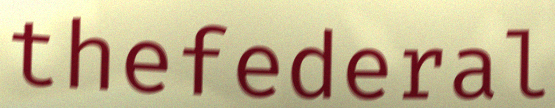
thefederal